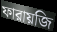
ফারায়জি